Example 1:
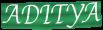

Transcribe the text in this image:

ADITYA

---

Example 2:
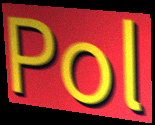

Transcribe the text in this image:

Pol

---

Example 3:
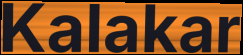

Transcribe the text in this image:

Kalakar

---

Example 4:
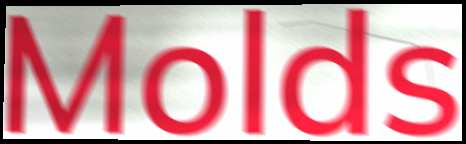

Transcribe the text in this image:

Molds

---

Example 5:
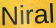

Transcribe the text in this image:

Niral